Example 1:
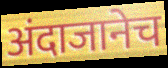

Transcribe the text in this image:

अंदाजानेच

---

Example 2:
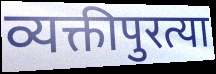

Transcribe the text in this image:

व्यक्तीपुरत्या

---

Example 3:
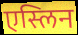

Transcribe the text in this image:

एस्लिन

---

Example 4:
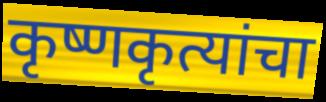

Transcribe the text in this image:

कृष्णकृत्यांचा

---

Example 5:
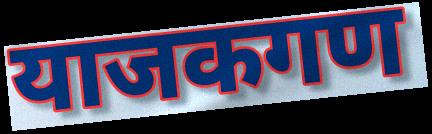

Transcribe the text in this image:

याजकगण